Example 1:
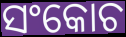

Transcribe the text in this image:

ସଂକୋଚ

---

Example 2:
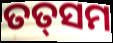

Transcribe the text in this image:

ତତ୍‌ସମ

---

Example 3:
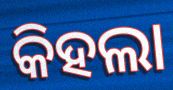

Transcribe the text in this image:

କିହଲା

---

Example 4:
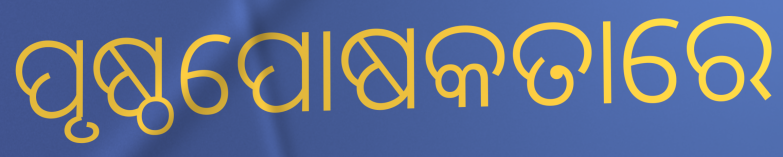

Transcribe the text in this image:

ପୃଷ୍ଠପୋଷକତାରେ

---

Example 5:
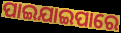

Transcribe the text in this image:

ପାଇଯାଇପାରେ